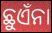
ଛୁଏଁନା